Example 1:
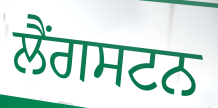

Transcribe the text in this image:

ਲੈਂਗਸਟਨ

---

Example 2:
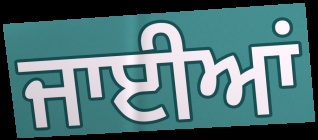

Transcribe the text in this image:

ਜਾਈਆਂ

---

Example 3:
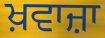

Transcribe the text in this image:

ਖ਼ਵਾਜ਼ਾ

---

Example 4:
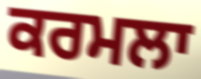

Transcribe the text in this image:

ਕਰਮਲਾ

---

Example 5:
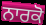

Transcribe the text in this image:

ਨਾਰਕੋ